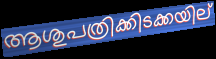
ആശുപത്രിക്കിടക്കയില്